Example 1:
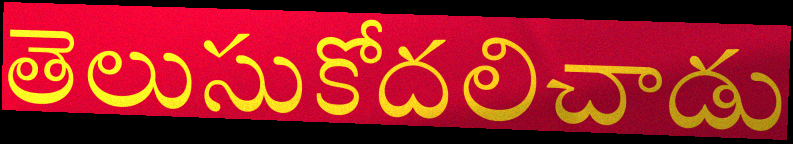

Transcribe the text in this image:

తెలుసుకోదలిచాడు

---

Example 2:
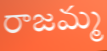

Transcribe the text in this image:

రాజమ్మ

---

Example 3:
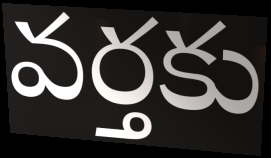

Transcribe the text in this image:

వర్తకు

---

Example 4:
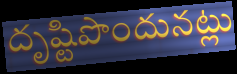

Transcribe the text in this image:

దృష్టిపొందునట్లు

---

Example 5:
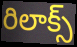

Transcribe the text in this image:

రిలాక్స్